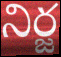
నిర్జ